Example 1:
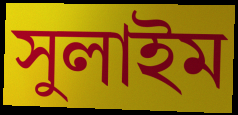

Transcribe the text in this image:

সুলাইম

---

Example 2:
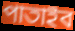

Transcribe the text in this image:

পাতাইব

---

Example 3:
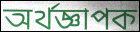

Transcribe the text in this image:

অর্থজ্ঞাপক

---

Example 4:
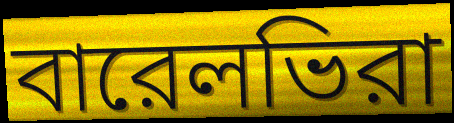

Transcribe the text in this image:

বারেলভিরা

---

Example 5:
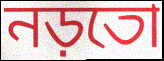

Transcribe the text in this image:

নড়তো